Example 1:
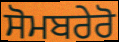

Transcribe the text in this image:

ਸੋਮਬਰੇਰੋ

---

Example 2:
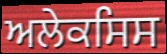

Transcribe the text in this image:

ਅਲੇਕਸਿਸ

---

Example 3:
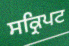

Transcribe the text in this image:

ਸਕ੍ਰਿਪਟ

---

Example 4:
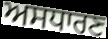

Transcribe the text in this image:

ਅਸਧਾਰਣ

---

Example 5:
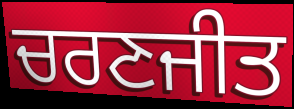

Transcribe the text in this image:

ਚਰਣਜੀਤ